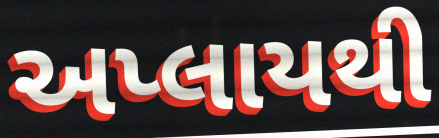
અપ્લાયથી